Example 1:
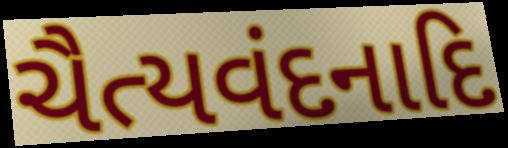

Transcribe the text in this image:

ચૈત્યવંદનાદિ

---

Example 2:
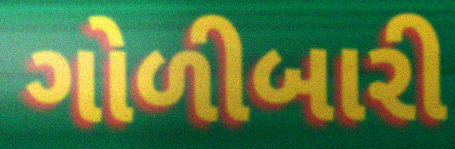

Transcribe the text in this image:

ગોળીબારી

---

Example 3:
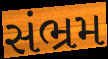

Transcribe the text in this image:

સંભ્રમ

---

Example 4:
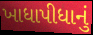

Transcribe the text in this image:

ખાધાપીધાનું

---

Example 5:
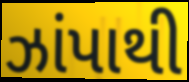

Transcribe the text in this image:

ઝાંપાથી